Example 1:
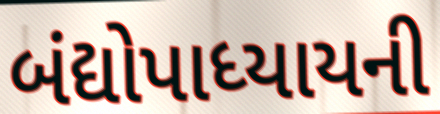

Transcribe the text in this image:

બંદ્યોપાધ્યાયની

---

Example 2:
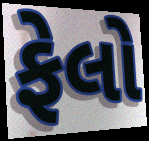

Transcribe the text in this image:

ફેલો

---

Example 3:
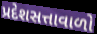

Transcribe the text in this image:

પ્રદેશસત્તાવાળો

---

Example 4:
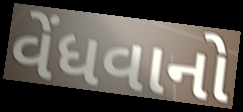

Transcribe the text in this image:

વેંધવાનો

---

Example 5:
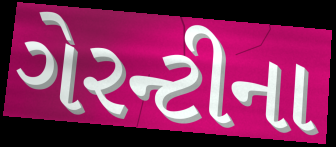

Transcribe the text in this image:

ગેરન્ટીના